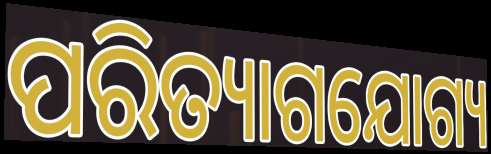
ପରିତ୍ୟାଗଯୋଗ୍ୟ